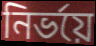
নিৰ্ভয়ে